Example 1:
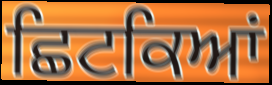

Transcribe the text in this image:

ਛਿਟਕਿਆਂ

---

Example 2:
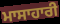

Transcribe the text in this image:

ਮਾਸਾਹਾਰੀ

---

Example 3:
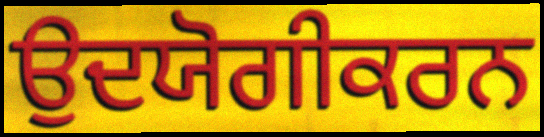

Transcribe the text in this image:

ਉਦਯੋਗੀਕਰਨ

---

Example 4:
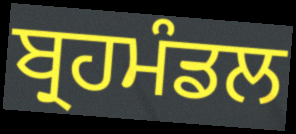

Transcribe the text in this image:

ਬ੍ਰਹਮੰਡਲ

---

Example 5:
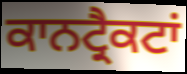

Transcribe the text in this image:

ਕਾਨਟ੍ਰੈਕਟਾਂ